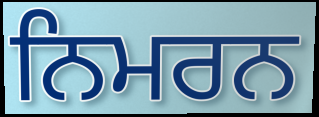
ਨਿਮਰਨ